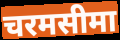
चरमसीमा